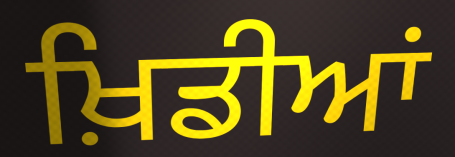
ਖ਼ਿਡੀਆਂ